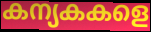
കന്യകകളെ